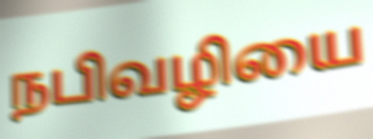
நபிவழியை